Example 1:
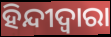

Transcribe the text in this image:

ହିନ୍ଦୀଦ୍ଵାରା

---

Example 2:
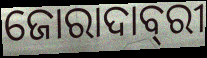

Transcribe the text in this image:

ଜୋରାଦାବ୍‌ରୀ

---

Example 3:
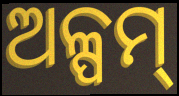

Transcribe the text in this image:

ଅଳ୍ପମ୍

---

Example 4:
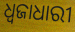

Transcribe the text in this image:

ଧ୍ଵଜାଧାରୀ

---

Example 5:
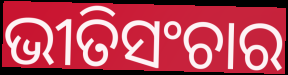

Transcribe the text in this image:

ଭୀତିସଂଚାର